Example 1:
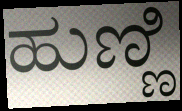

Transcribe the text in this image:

ಹುಣ್ಣಿ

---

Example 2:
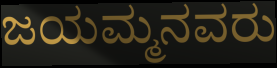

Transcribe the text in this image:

ಜಯಮ್ಮನವರು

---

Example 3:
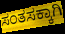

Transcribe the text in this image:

ಸಂತಸಕ್ಕಾಗಿ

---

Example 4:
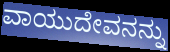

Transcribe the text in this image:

ವಾಯುದೇವನನ್ನು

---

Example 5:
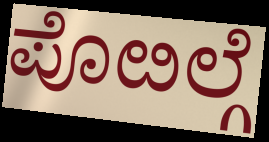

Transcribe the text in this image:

ಪೊೞಲ್ಗೆ